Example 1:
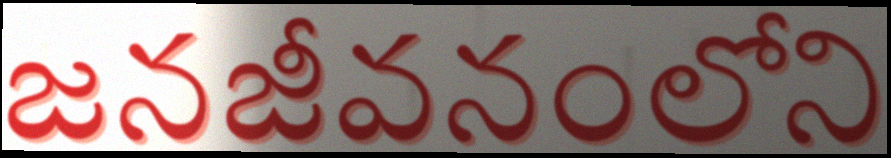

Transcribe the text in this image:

జనజీవనంలోని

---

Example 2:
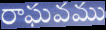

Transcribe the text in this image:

రాఘవము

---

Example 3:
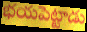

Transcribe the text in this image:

భయపెట్టాడు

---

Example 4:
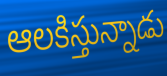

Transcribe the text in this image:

ఆలకిస్తున్నాడు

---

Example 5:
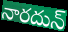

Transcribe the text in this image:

నారదున్